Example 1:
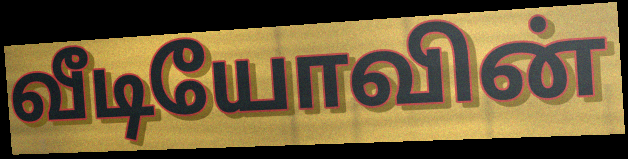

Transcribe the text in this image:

வீடியோவின்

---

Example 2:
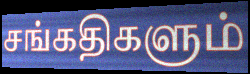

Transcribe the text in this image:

சங்கதிகளும்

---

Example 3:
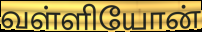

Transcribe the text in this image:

வள்ளியோன்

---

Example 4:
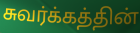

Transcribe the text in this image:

சுவர்க்கத்தின்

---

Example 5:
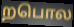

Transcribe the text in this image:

றபொல